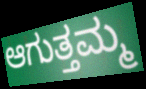
ಆಗುತ್ತಮ್ಮ